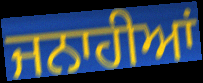
ਜਨਾਹੀਆਂ